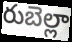
రుబెల్లా